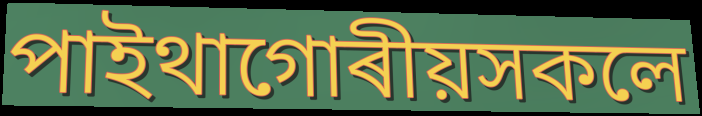
পাইথাগোৰীয়সকলে